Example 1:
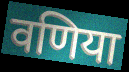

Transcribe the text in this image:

वणिया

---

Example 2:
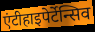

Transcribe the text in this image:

एंटीहाइपेर्टेन्सिव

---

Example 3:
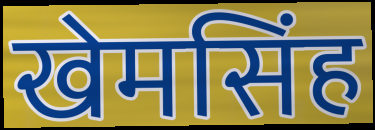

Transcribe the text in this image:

खेमसिंह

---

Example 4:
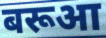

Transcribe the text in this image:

बरूआ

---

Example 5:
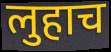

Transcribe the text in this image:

लुहाच